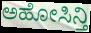
ಅಹೋಸಿನ್ತಿ